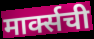
मार्क्सची